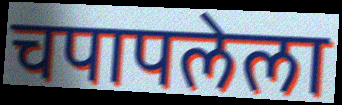
चपापलेला